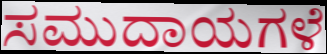
ಸಮುದಾಯಗಳೆ